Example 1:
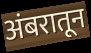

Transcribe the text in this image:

अंबरातून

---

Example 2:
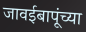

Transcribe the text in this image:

जावईबापूंच्या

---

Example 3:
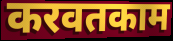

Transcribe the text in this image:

करवतकाम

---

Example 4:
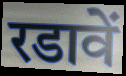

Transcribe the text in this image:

रडावें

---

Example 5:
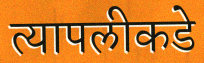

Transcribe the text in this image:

त्यापलीकडे